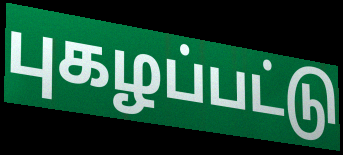
புகழப்பட்டு